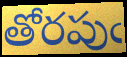
తోరపుఁ